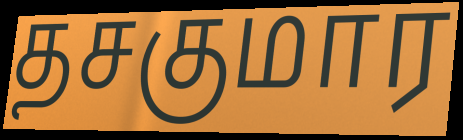
தசகுமார